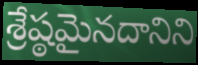
శ్రేష్ఠమైనదానిని